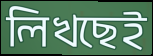
লিখছেই